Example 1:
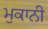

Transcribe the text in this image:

ਮੁਕਾਨੀ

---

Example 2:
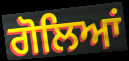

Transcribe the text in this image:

ਗੋਲਿਆਂ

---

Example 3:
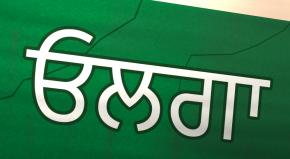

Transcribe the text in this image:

ਓਲਗਾ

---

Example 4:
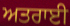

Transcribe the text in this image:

ਅਤਰਾਈ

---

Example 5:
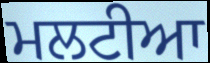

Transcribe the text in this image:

ਮਲਟੀਆ